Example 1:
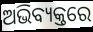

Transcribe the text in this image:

ଅଭିବ୍ୟକ୍ତରେ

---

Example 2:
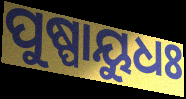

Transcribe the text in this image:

ପୁଷ୍ପାୟୁଧଃ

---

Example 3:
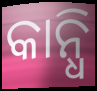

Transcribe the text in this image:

କାନ୍ଧି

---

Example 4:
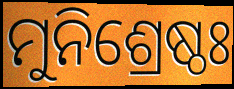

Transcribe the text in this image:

ମୁନିଶ୍ରେଷ୍ଠଃ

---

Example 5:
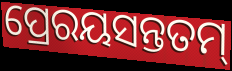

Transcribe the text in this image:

ପ୍ରେରୟସନ୍ତତମ୍